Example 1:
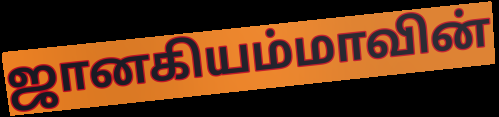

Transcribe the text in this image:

ஜானகியம்மாவின்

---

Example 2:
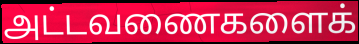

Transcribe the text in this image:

அட்டவணைகளைக்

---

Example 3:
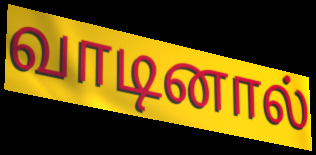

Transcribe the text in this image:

வாடினால்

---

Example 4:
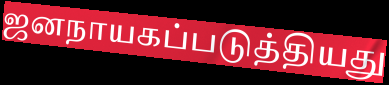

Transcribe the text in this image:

ஜனநாயகப்படுத்தியது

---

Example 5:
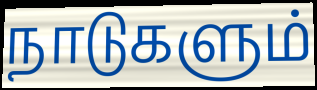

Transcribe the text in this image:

நாடுகளும்